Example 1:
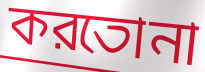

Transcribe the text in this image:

করতোনা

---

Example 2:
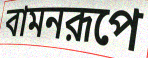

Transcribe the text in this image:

বামনরূপে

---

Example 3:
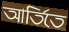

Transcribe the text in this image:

আর্তিতে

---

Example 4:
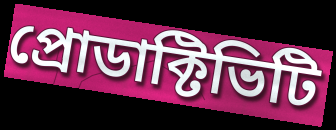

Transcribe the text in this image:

প্রোডাক্টিভিটি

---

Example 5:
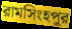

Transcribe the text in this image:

রামসিংহপুর